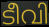
ടീവി